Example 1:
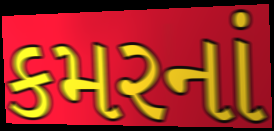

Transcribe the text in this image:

કમરનાં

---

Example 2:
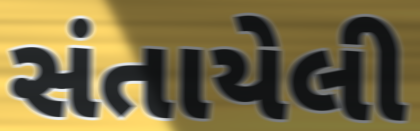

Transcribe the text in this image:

સંતાયેલી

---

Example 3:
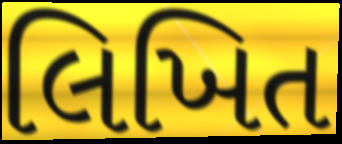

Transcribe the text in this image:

લિખિત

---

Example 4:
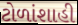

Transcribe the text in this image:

ટોળાંશાહી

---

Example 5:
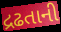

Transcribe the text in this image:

દ્રઢતાની